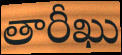
తారీఖు